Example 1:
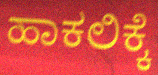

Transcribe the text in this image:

ಹಾಕಲಿಕ್ಕೆ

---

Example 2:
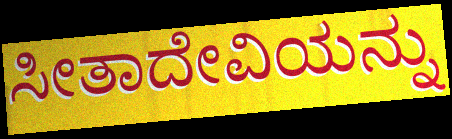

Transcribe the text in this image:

ಸೀತಾದೇವಿಯನ್ನು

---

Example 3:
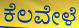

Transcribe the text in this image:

ಕೆಲವೇಳೆ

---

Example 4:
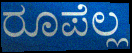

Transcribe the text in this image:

ರೂಪೆಲ್ಲ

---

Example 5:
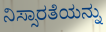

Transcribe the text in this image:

ನಿಸ್ಸಾರತೆಯನ್ನು